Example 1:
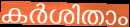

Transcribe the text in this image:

കർശിതാം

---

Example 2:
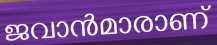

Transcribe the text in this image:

ജവാൻമാരാണ്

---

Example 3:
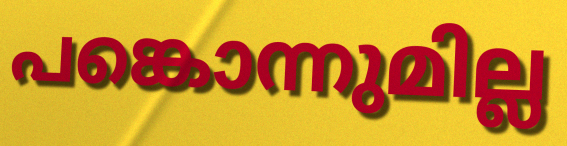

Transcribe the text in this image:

പങ്കൊന്നുമില്ല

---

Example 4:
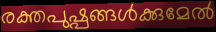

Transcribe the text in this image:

രക്തപുഷ്പങ്ങൾക്കുമേൽ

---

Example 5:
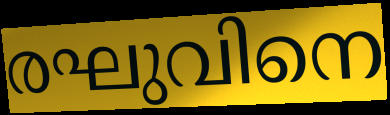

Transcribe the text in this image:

രഘുവിനെ